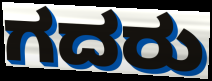
ಗದರು